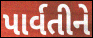
પાર્વતીને